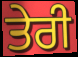
ਤੇਰੀ